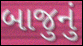
બાજુનું